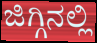
ಜಿಗ್ಗಿನಲ್ಲಿ